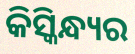
କିସ୍କିନ୍ଧ୍ୟର